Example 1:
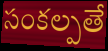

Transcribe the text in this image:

సంకల్పతే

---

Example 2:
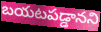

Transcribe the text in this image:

బయటపడ్డానని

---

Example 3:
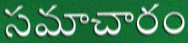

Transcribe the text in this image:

సమాచారం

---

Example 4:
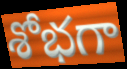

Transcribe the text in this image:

శోభగా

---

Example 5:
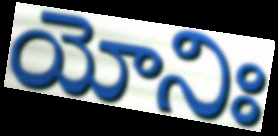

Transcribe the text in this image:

యోనిః